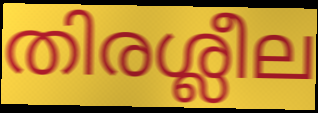
തിരശ്ലീല